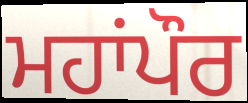
ਮਹਾਂਪੌਰ